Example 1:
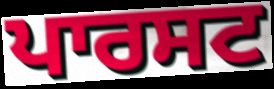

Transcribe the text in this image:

ਪਾਰਸਟ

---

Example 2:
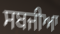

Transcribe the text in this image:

ਸਬਜੀਆ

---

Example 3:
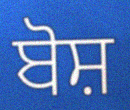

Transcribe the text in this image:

ਬੋਸ਼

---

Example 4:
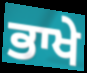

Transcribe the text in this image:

ਭਾਖੇ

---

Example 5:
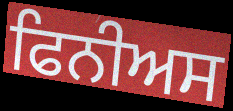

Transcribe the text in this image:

ਫਿਨੀਅਸ